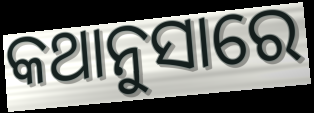
କଥାନୁସାରେ